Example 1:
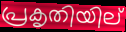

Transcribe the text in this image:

പ്രകൃതിയില്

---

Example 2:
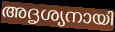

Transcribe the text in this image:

അദൃശ്യനായി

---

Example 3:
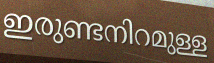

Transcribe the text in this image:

ഇരുണ്ടനിറമുള്ള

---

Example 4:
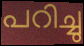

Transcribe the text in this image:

പറിച്ചു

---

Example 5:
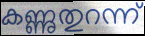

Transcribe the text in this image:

കണ്ണുതുറന്ന്